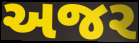
અજર